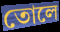
তোলে